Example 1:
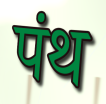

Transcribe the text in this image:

पंथ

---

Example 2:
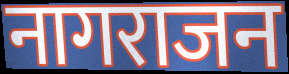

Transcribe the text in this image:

नागराजन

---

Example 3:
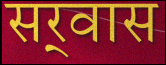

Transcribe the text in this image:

सर्वास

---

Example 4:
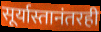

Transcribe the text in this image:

सूर्यास्तानंतरही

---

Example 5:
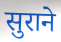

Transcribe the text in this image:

सुराने